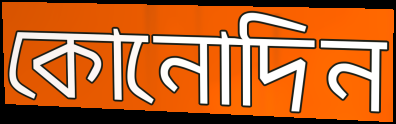
কোনোদিন